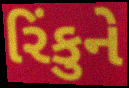
રિંકુને